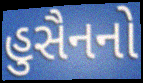
હુસૈનનો